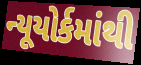
ન્યૂયોર્કમાંથી